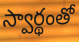
స్వార్థంతో